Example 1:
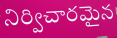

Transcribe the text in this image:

నిర్విచారమైన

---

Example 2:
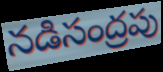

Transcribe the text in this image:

నడిసంద్రపు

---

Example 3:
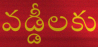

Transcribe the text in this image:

వడ్డీలకు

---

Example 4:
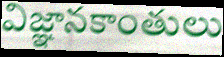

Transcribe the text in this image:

విజ్ఞానకాంతులు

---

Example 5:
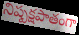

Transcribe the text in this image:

నిష్పక్షపాతంగా